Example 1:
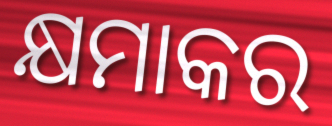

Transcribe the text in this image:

କ୍ଷମାକର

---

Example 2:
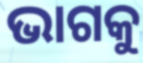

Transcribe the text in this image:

ଭାଗକୁ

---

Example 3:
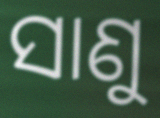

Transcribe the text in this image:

ସାଣୁ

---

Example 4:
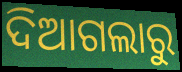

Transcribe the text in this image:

ଦିଆଗଲାରୁ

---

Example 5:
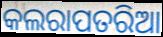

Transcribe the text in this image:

କଲରାପତରିଆ